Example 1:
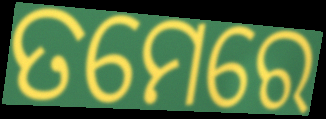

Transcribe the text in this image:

ତମେରେ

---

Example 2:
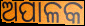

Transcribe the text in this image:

ଅପାଳକ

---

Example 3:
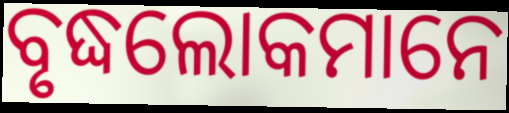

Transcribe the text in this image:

ବୃଦ୍ଧଲୋକମାନେ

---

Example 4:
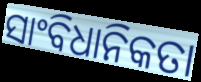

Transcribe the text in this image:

ସାଂବିଧାନିକତା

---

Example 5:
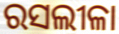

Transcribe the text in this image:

ରସଲୀଳା